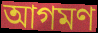
আগমণ